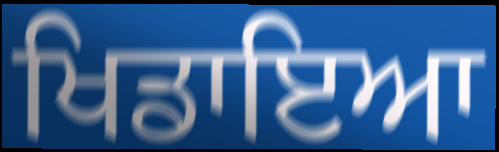
ਖਿਡਾਇਆ